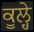
ਕੂਲ੍ਹੇ